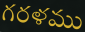
గరళము